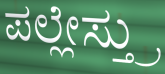
ಪಲ್ಲೇಸ್ತ್ರು